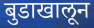
बुडाखालून